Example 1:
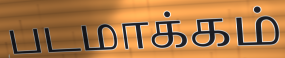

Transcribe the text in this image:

படமாக்கம்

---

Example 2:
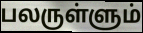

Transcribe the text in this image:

பலருள்ளும்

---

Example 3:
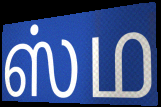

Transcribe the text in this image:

ஸ்ம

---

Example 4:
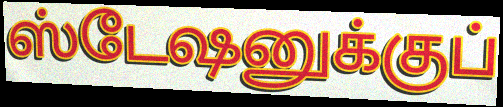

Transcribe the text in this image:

ஸ்டேஷனுக்குப்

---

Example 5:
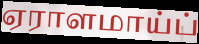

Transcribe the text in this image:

ஏராளமாய்ப்